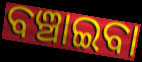
ବଞ୍ଚାଇବା